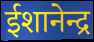
ईशानेन्द्र